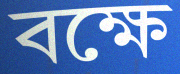
বক্ষে